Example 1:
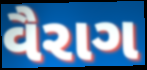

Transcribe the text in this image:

વૈરાગ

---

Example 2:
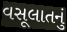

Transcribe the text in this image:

વસૂલાતનું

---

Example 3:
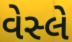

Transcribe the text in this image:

વેસ્લે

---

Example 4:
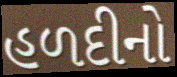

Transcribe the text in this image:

હળદીનો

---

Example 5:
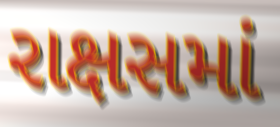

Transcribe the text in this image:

રાક્ષસમાં